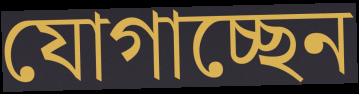
যোগাচ্ছেন